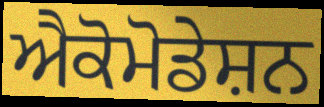
ਐਕੋਮੋਡੇਸ਼ਨ